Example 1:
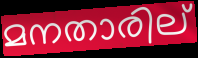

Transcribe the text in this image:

മനതാരില്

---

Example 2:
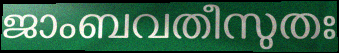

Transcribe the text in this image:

ജാംബവതീസുതഃ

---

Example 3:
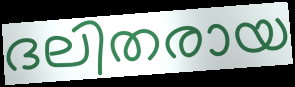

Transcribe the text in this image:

ദലിതരായ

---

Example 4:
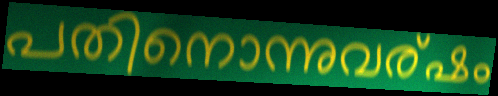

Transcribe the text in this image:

പതിനൊന്നുവര്ഷം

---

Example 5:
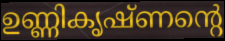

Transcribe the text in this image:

ഉണ്ണികൃഷ്ണന്റെ